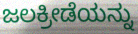
ಜಲಕ್ರೀಡೆಯನ್ನು